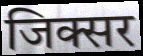
जिक्सर